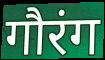
गौरंग